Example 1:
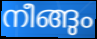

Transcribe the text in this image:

നീങ്ങും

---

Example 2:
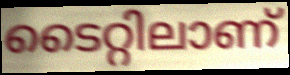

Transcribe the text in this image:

ടൈറ്റിലാണ്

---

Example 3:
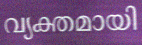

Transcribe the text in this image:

വ്യക്തമായി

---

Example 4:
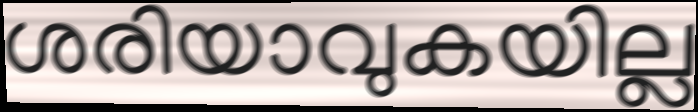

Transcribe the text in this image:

ശരിയാവുകയില്ല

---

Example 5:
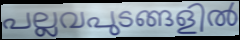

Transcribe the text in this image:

പല്ലവപുടങ്ങളിൽ